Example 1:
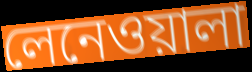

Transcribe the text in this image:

লেনেওয়ালা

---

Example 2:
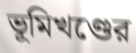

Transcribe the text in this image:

ভূমিখণ্ডের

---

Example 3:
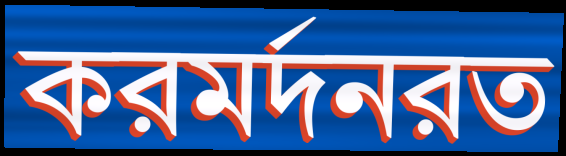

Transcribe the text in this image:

করমর্দনরত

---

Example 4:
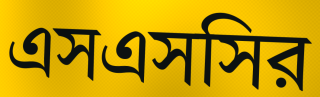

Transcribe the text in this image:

এসএসসির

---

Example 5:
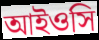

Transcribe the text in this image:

আইওসি